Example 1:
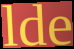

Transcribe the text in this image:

lde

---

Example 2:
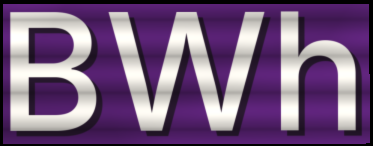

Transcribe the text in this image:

BWh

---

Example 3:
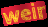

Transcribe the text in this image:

weir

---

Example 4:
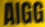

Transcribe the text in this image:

AIGG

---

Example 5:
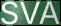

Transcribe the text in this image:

SVA